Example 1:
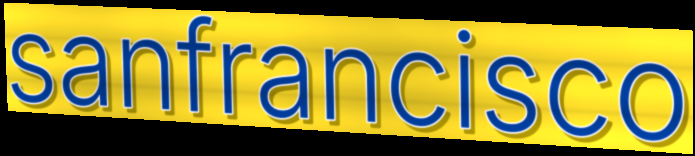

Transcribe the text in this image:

sanfrancisco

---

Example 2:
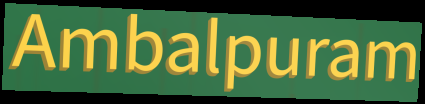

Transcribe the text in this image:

Ambalpuram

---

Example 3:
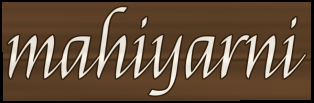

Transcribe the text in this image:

mahiyarni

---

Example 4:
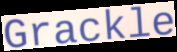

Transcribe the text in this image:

Grackle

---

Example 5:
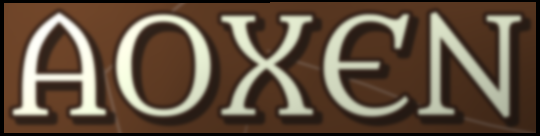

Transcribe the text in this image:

AOXEN